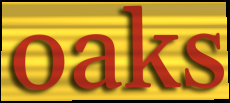
oaks